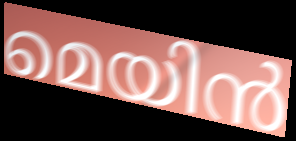
മെയിൻ